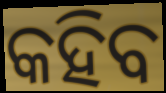
କହିବ